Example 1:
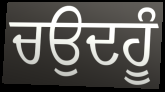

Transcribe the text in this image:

ਚਉਦਹੂੰ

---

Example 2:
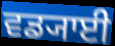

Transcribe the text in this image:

ਵਡ੍ਯਾਈ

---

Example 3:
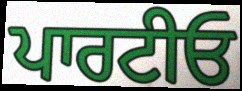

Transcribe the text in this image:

ਪਾਰਟੀਓ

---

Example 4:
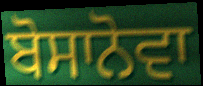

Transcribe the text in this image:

ਬੋਸਾਨੋਵਾ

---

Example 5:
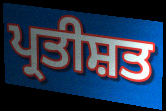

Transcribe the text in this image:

ਪ੍ਰਤੀਸ਼ਤ